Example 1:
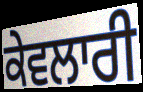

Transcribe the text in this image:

ਕੇਵਲਾਰੀ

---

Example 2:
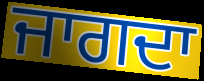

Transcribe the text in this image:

ਜਾਗਦਾ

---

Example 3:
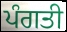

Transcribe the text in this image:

ਪੰਗਤੀ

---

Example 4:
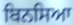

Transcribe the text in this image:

ਬਿਨਸਿਆ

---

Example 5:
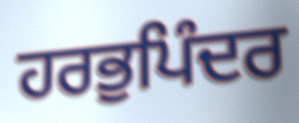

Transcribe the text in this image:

ਹਰਭੁਪਿੰਦਰ